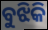
ବୁଝିକି